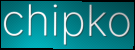
chipko